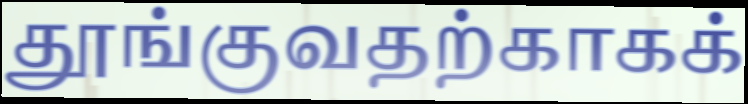
தூங்குவதற்காகக்